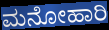
ಮನೋಹಾರಿ